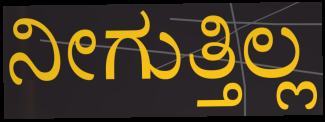
ನೀಗುತ್ತಿಲ್ಲ